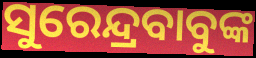
ସୁରେନ୍ଦ୍ରବାବୁଙ୍କ